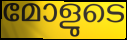
മോളുടെ